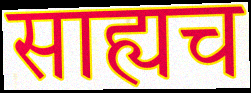
साह्यच